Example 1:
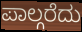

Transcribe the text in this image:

ಪಾಲ್ಗರೆದು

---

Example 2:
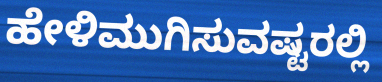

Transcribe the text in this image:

ಹೇಳಿಮುಗಿಸುವಷ್ಟರಲ್ಲಿ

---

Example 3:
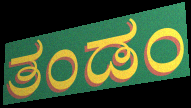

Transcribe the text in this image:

ತಂಡಂ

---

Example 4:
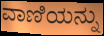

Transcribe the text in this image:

ವಾಣಿಯನ್ನು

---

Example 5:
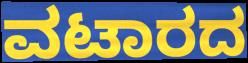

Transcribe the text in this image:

ವಟಾರದ